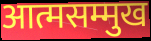
आत्मसम्मुख